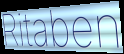
Ritaben